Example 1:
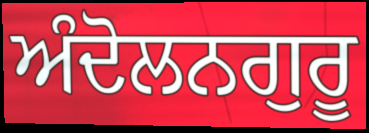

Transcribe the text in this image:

ਅੰਦੋਲਨਗੁਰੂ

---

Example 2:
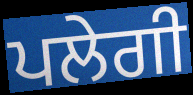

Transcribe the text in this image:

ਪਲੇਗੀ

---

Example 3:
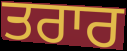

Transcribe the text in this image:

ਤਰਾਰ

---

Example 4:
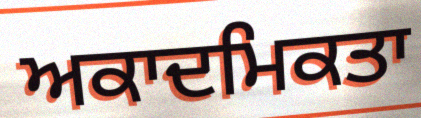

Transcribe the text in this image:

ਅਕਾਦਮਿਕਤਾ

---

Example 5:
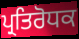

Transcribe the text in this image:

ਪ੍ਰਤਿਰੋਧਕ